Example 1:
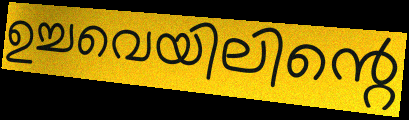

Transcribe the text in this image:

ഉച്ചവെയിലിന്റെ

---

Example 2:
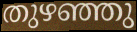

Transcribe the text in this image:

തുഴഞ്ഞു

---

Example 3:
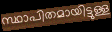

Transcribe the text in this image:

സ്ഥാപിതമായിട്ടുള്ള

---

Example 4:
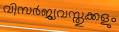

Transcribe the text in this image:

വിസർജ്യവസ്തുക്കളും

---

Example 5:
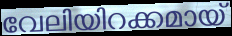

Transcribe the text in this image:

വേലിയിറക്കമായ്